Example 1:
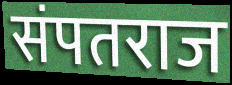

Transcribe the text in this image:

संपतराज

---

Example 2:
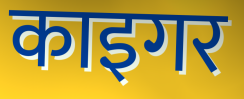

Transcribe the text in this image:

काइगर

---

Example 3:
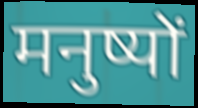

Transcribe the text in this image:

मनुष्यों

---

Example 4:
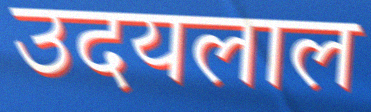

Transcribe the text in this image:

उदयलाल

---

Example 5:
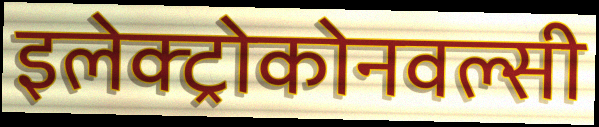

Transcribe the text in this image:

इलेक्ट्रोकोनवल्सी